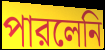
পারলেনি